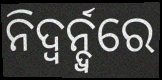
ନିଦ୍ଵର୍ନ୍ଦ୍ୱରେ